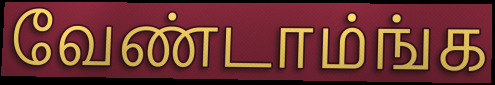
வேண்டாம்ங்க